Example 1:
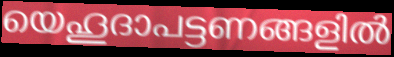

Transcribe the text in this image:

യെഹൂദാപട്ടണങ്ങളിൽ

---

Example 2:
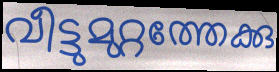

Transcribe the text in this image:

വീട്ടുമുറ്റത്തേക്കു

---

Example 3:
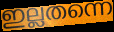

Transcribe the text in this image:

ഇല്ലതന്നെ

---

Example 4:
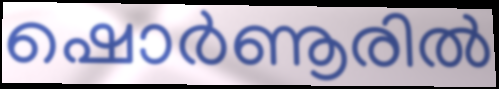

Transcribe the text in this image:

ഷൊർണൂരിൽ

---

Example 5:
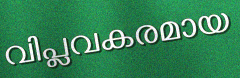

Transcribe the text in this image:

വിപ്ലവകരമായ